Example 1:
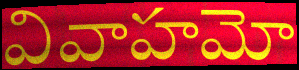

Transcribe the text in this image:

వివాహమో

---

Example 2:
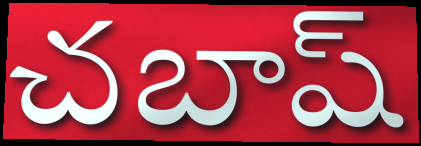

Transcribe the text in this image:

చబాష్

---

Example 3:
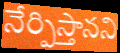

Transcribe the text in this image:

నేర్పిస్తానని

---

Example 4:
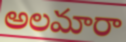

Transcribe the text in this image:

అలమారా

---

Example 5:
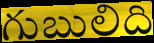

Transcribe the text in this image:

గుబులిది